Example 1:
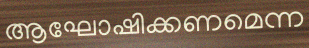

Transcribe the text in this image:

ആഘോഷിക്കണമെന്ന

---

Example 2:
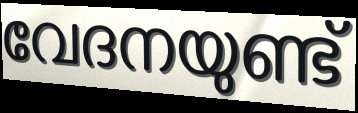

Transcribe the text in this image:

വേദനയുണ്ട്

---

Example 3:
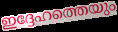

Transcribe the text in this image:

ഇദ്ദേഹത്തെയും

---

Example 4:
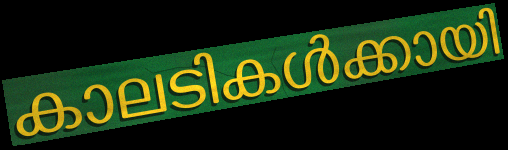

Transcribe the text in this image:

കാലടികൾക്കായി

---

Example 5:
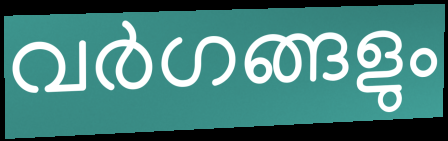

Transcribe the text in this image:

വർഗങ്ങളും